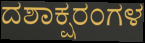
ದಶಾಕ್ಷರಂಗಳ